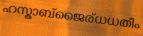
ഹസ്താബ്ജൈര്ധധതീം